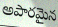
అపారమైన